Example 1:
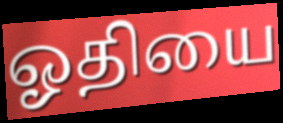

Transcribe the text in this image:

ஓதியை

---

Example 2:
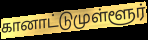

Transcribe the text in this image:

கானாட்டுமுள்ளூர்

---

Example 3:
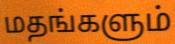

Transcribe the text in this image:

மதங்களும்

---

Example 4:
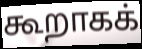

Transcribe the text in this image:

கூறாகக்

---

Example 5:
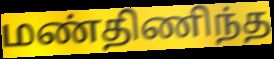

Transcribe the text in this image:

மண்திணிந்த